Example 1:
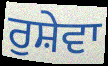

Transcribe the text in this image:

ਰੁਸ਼ੇਵਾ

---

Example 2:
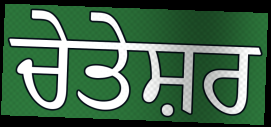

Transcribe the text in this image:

ਚੇਤੇਸ਼ਰ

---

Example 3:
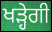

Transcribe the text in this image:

ਖੜ੍ਹੇਗੀ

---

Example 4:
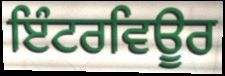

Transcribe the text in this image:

ਇੰਟਰਵਿਊਰ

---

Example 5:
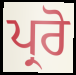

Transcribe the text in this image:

ਪ੍ਰਰੋ